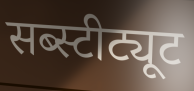
सब्स्टीट्यूट